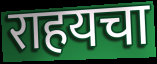
राहयचा